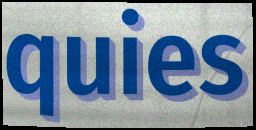
quies